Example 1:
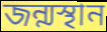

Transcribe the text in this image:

জন্মস্থান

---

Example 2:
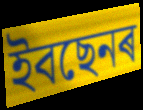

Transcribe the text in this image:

ইবছেনৰ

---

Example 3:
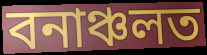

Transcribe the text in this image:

বনাঞ্চলত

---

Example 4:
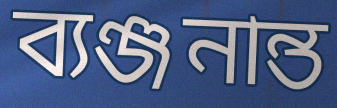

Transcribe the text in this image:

ব্যঞ্জনান্ত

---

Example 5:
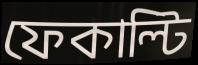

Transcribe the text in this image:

ফেকাল্টি